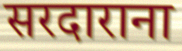
सरदाराना